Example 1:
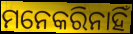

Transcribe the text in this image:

ମନେକରିନାହିଁ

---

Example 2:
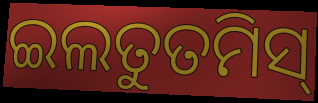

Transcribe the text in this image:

ଇଲତୁତମିସ୍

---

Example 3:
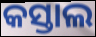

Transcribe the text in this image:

କସ୍ତାଲ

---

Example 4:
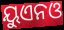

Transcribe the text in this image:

ୟୁଏନଓ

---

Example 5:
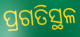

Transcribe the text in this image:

ପ୍ରଗତିସ୍ଥଳ